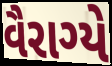
વૈરાગ્યે